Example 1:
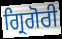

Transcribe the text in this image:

ਗ੍ਰਿਗੋਰੀ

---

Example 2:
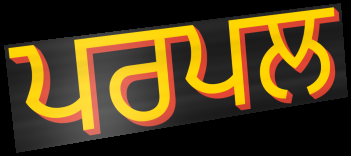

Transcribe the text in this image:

ਪਰਪਲ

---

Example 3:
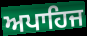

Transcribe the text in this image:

ਅਪਾਹਿਜ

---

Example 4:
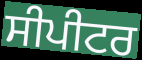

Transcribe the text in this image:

ਸੀਪੀਟਰ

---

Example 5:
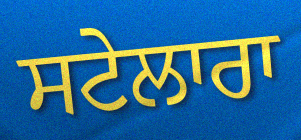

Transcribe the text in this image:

ਸਟੇਲਾਰਾ